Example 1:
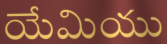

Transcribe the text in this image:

యేమియు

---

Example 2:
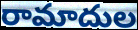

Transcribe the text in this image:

రామాదుల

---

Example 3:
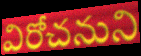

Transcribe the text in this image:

విరోచనుని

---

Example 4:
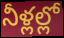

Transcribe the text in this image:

నీళ్లల్లో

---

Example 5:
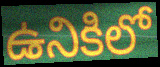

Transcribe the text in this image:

ఉనికిలో